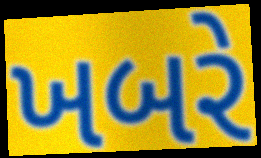
ખબરે